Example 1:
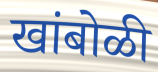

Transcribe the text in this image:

खांबोळी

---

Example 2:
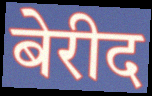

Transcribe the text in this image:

बेरीद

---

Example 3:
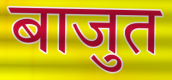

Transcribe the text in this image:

बाजुत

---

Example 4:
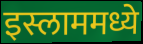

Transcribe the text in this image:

इस्लाममध्ये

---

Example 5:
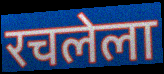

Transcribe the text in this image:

रचलेला